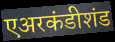
एअरकंडीशंड